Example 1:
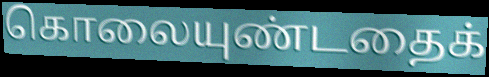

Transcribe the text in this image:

கொலையுண்டதைக்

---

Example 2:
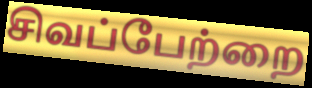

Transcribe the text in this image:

சிவப்பேற்றை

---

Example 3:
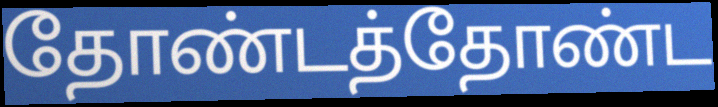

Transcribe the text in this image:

தோண்டத்தோண்ட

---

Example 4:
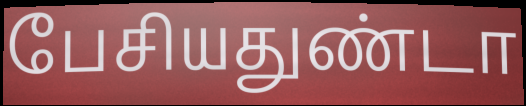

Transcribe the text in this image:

பேசியதுண்டா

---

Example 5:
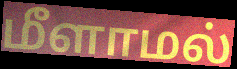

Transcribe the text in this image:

மீளாமல்